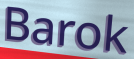
Barok